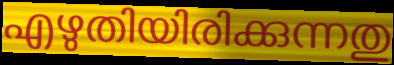
എഴുതിയിരിക്കുന്നതു